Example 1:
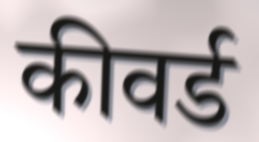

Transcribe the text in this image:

कीवर्ड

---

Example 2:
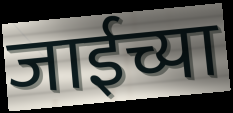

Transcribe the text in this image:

जाईच्या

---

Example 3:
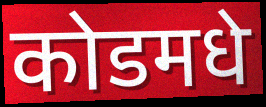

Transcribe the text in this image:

कोडमधे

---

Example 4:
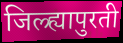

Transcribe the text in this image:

जिल्ह्यापुरती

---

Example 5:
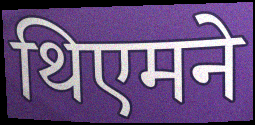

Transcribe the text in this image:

थिएमने